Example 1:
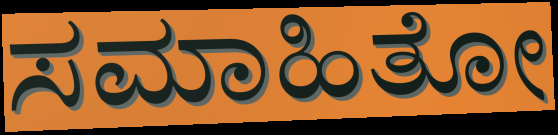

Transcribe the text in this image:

ಸಮಾಹಿತೋ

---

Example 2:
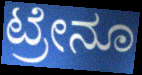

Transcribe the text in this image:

ಟ್ರೇನೂ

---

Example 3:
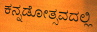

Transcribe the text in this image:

ಕನ್ನಡೋತ್ಸವದಲ್ಲಿ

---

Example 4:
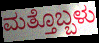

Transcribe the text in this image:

ಮತ್ತೊಬ್ಬಳು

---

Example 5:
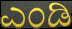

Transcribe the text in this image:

ಎಂಡಿ